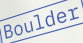
Boulder